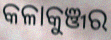
କଳାକୁଞ୍ଜର